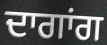
ਦਾਗਾਂਗ